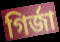
গির্জা